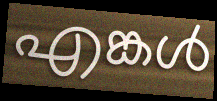
എങ്കൾ